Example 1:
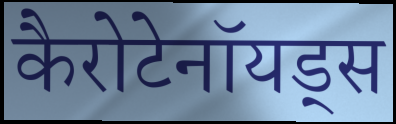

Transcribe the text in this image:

कैरोटेनॉयड्स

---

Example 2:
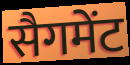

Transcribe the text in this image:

सैगमेंट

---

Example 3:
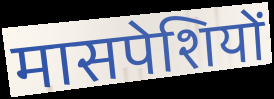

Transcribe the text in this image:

मासपेशियों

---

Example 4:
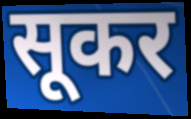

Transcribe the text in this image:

सूकर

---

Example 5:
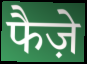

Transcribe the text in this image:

फैज़े